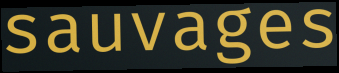
sauvages